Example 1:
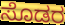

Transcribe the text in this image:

ಸೊಡರ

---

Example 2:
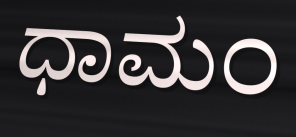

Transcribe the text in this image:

ಧಾಮಂ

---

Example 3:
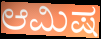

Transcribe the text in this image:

ಆಮಿಷ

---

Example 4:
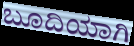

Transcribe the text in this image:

ಬೂದಿಯಾಗಿ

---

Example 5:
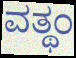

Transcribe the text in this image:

ವತ್ಥಂ